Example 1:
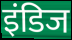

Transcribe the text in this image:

इंडिज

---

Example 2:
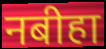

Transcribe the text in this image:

नबीहा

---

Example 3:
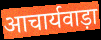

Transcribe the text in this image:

आचार्यवाड़ा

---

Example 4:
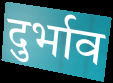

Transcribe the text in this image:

दुर्भाव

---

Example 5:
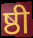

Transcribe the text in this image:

ष्ठी